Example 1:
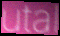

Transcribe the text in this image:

utal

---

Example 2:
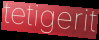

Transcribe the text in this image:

tetigerit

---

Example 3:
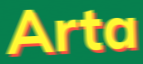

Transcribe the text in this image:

Arta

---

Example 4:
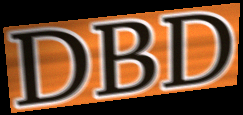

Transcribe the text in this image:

DBD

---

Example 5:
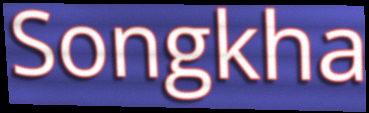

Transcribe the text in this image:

Songkha